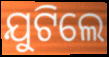
ଯୁଟିଲେ